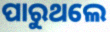
ପାରୁଥଲେ